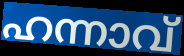
ഹന്നാവ്